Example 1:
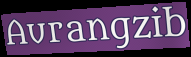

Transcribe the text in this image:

Aurangzib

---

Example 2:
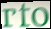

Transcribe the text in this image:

rto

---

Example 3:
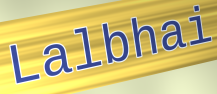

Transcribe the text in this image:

Lalbhai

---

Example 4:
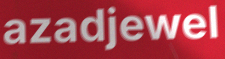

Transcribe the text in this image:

azadjewel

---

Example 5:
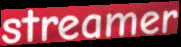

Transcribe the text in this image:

streamer